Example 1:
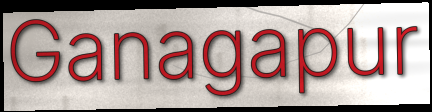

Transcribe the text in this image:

Ganagapur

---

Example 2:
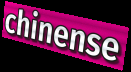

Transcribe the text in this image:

chinense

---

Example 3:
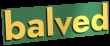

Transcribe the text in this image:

balved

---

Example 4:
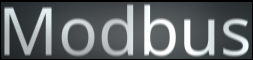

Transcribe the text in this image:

Modbus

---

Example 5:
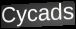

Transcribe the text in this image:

Cycads